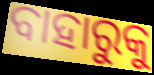
ବାହାରୁକୁ